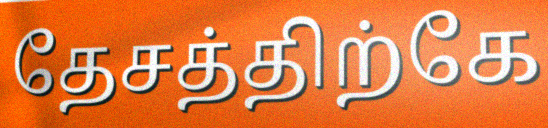
தேசத்திற்கே